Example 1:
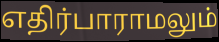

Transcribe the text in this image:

எதிர்பாராமலும்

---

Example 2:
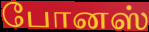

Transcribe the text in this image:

போனஸ்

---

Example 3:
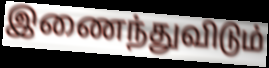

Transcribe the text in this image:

இணைந்துவிடும்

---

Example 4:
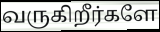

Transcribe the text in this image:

வருகிறீர்களே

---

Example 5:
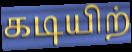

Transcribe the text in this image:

கடியிற்